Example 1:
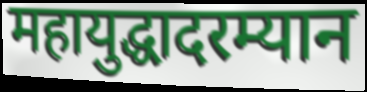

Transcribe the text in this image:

महायुद्धादरम्यान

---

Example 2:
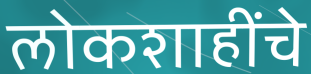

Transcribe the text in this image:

लोकशाहींचे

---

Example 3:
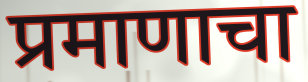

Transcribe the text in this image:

प्रमाणाचा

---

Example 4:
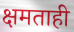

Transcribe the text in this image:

क्षमताही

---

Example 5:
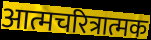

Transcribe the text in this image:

आत्मचरित्रात्मक